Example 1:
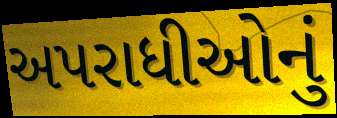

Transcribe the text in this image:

અપરાધીઓનું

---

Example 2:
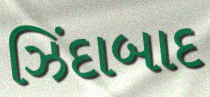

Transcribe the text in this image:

ઝિંદાબાદ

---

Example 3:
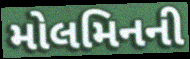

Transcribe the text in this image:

મોલમિનની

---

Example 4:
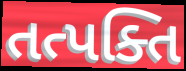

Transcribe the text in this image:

તત્પક્તિ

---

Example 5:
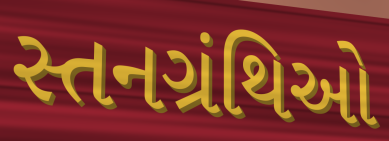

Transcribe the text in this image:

સ્તનગ્રંથિઓ